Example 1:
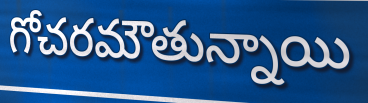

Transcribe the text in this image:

గోచరమౌతున్నాయి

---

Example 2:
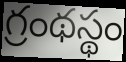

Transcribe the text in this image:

గ్రంథస్థం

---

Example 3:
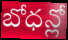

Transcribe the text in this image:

బోధన్లో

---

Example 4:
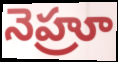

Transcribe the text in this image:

నెహ్రూ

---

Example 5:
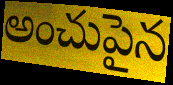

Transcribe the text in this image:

అంచుపైన